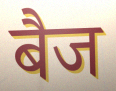
बैज